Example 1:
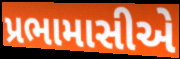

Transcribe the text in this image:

પ્રભામાસીએ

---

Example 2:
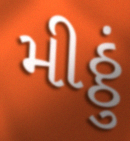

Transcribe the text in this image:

મીઠ્ઠું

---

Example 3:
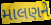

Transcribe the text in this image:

માલણને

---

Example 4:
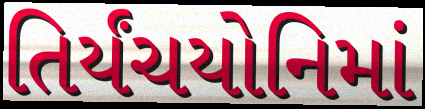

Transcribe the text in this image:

તિર્યંચયોનિમાં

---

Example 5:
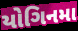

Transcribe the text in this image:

યોગિનમા